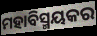
ମହାବିସ୍ମୟକର